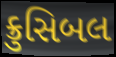
ક્રુસિબલ